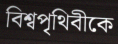
বিশ্বপৃথিবীকে